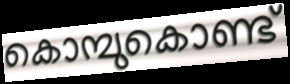
കൊമ്പുകൊണ്ട്